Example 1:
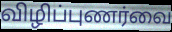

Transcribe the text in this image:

விழிப்புணர்வை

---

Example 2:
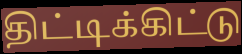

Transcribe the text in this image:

திட்டிக்கிட்டு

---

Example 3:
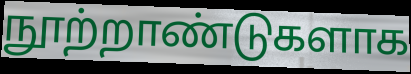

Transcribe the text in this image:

நூற்றாண்டுகளாக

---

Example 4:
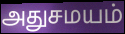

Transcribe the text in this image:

அதுசமயம்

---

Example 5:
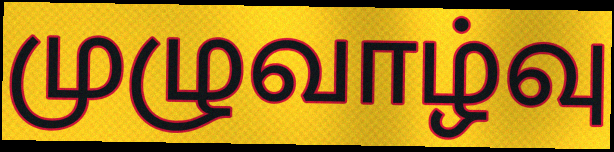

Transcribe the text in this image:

முழுவாழ்வு